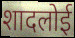
शादलोई